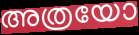
അത്രയോ